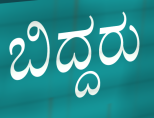
ಬಿದ್ದರು